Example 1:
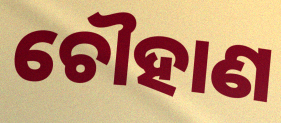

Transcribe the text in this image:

ଚୌହାଣ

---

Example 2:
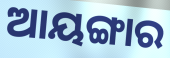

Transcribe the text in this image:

ଆୟଙ୍ଗାର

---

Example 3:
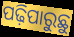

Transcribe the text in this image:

ପଢ଼ିପାରୁଛୁ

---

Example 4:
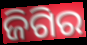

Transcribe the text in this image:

ଜିଗିର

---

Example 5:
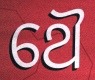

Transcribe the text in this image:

ଥୈ